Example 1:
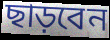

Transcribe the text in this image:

ছাড়বেন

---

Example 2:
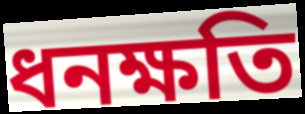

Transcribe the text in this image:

ধনক্ষতি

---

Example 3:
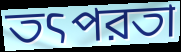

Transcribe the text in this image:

তৎপরতা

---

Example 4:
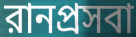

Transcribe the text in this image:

রানপ্রসবা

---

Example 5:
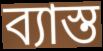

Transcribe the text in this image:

ব্যাস্ত